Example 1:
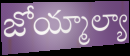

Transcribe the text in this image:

జోయ్మాల్యా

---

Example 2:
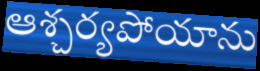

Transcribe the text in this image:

ఆశ్చర్యపోయాను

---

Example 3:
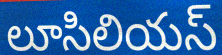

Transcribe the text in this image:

లూసిలియస్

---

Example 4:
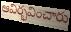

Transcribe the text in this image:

ఆవిర్భవించారు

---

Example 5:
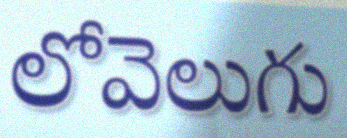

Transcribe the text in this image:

లోవెలుగు